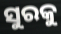
ସୁରକୁ